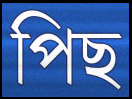
পিছ